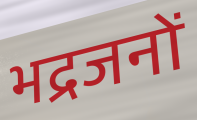
भद्रजनों